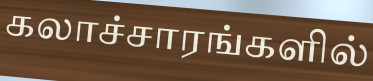
கலாச்சாரங்களில்